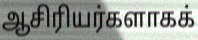
ஆசிரியர்களாகக்